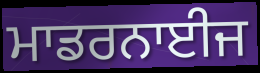
ਮਾਡਰਨਾਈਜ